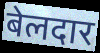
बेलदार